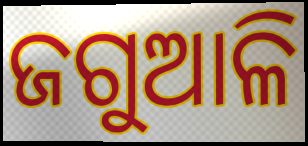
ଜଗୁଆଳି